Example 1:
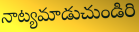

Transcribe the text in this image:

నాట్యమాడుచుండిరి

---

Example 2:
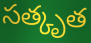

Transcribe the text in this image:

సత్కృత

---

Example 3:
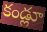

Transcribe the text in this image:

కండ్లూ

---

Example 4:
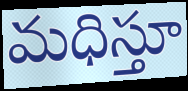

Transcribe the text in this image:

మధిస్తూ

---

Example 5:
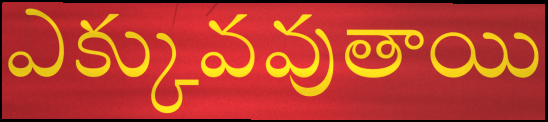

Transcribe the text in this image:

ఎక్కువవుతాయి